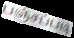
பஞ்சப்படி